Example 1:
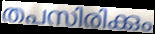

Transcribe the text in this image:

തപസിരിക്കും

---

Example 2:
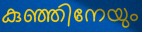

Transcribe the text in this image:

കുഞ്ഞിനേയും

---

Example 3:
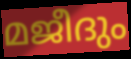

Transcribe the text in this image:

മജീദും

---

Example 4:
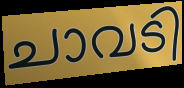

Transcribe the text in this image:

ചാവടി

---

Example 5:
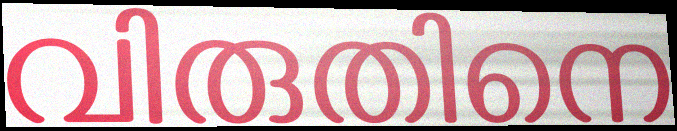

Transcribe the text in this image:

വിരുതിനെ